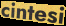
cintesi